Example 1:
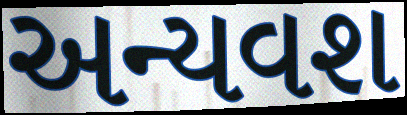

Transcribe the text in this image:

અન્યવશ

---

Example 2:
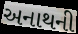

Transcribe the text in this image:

અનાથની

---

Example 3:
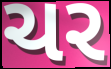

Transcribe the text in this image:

ચર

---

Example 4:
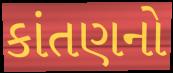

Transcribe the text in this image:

કાંતણનો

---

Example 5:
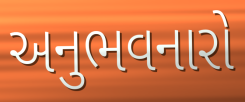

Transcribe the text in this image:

અનુભવનારો